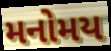
મનોમય